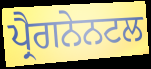
ਪ੍ਰੈਗਨੇਨਟਲ